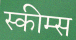
स्कीम्स